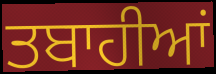
ਤਬਾਹੀਆਂ